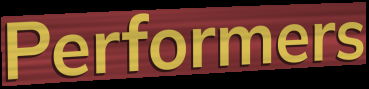
Performers